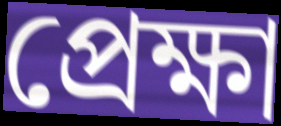
প্ৰেক্ষা